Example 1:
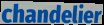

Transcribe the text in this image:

chandelier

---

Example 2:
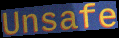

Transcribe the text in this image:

Unsafe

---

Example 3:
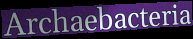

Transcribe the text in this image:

Archaebacteria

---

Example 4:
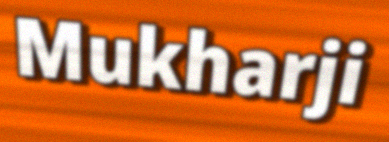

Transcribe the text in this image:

Mukharji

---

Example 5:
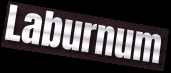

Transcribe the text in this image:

Laburnum